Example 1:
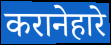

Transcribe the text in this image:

करानेहारे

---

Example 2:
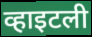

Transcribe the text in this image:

व्हाइटली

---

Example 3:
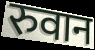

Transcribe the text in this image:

रुवान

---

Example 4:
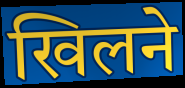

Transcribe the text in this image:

खिलने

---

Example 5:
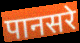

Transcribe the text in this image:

पानसरे